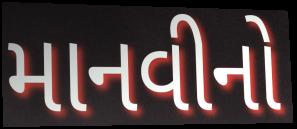
માનવીનો